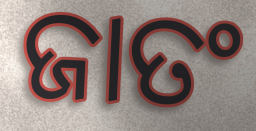
ଜାତଂ